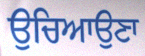
ਉਚਿਆਉਣਾ